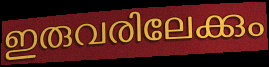
ഇരുവരിലേക്കും